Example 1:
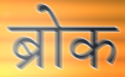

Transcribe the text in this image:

ब्रोक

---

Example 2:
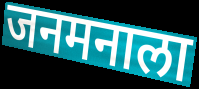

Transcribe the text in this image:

जनमनाला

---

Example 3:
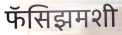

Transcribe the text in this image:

फॅसिझमशी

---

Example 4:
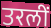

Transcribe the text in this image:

उरलीं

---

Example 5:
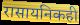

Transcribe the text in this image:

रासायनिकही